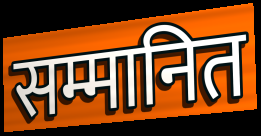
सम्मानित